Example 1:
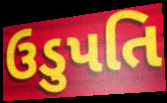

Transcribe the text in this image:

ઉડુપતિ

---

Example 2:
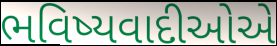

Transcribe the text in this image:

ભવિષ્યવાદીઓએ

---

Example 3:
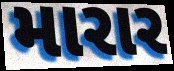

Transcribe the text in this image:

મારાર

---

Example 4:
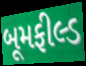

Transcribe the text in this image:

બૂમફીલ્ડ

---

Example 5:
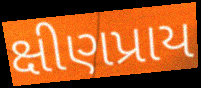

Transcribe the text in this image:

ક્ષીણપ્રાય